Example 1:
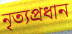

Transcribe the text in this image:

নৃত্যপ্রধান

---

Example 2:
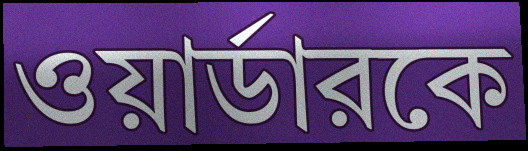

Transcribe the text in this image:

ওয়ার্ডারকে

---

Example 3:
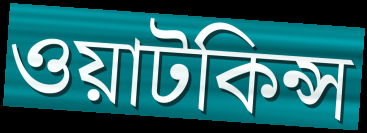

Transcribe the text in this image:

ওয়াটকিন্স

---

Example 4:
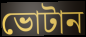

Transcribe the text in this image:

ভোটান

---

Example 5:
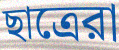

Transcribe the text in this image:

ছাত্রেরা